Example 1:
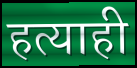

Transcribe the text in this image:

हत्याही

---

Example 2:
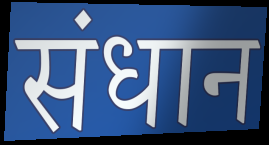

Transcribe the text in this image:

संधान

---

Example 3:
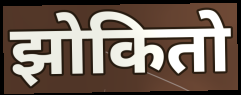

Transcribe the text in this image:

झोकितो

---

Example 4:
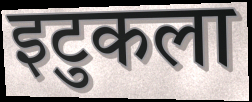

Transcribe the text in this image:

इटुकला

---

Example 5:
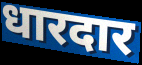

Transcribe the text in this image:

धारदार